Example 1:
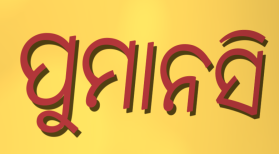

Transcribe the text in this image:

ପୁମାନସି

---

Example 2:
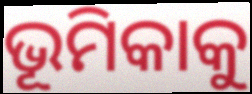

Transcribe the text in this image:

ଭୂମିକାକୁ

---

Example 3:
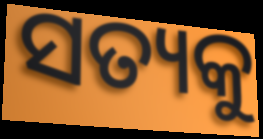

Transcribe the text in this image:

ସତ୍ୟକୁ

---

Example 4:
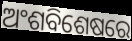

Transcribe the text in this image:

ଅଂଶବିଶେଷରେ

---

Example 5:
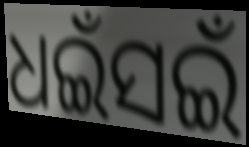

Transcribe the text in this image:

ଧଇଁସଇଁ